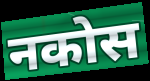
नकोस